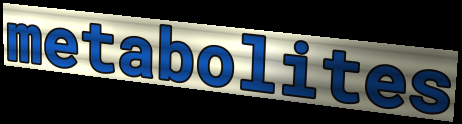
metabolites